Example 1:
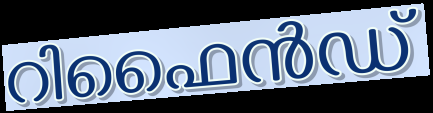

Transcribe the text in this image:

റിഫൈൻഡ്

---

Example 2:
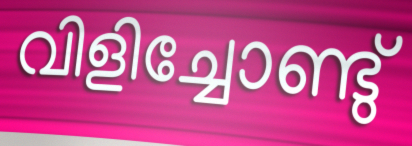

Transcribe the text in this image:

വിളിച്ചോണ്ടു്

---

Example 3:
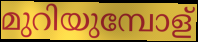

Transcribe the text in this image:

മുറിയുമ്പോള്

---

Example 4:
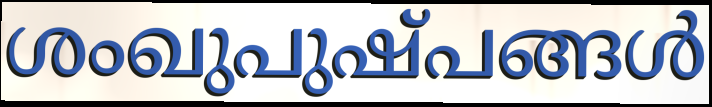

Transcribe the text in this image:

ശംഖുപുഷ്പങ്ങൾ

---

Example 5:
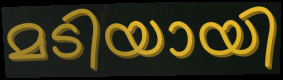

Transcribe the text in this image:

മടിയായി